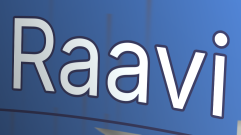
Raavi